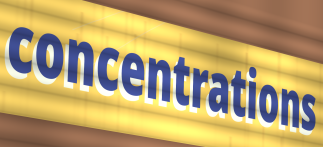
concentrations